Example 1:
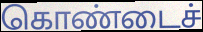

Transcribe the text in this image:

கொண்டைச்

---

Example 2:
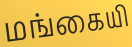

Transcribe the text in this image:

மங்கையி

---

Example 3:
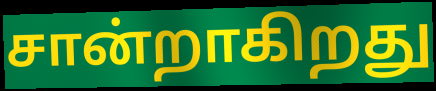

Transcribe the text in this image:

சான்றாகிறது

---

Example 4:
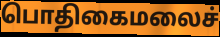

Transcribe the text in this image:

பொதிகைமலைச்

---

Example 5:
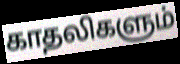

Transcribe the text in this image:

காதலிகளும்